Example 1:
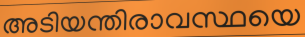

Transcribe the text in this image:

അടിയന്തിരാവസ്ഥയെ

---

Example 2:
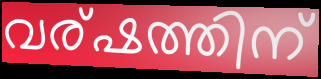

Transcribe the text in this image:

വര്ഷത്തിന്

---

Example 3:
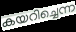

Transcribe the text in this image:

കയറിച്ചെന്ന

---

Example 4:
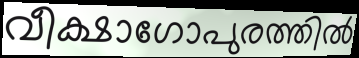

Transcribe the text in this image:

വീക്ഷാഗോപുരത്തിൽ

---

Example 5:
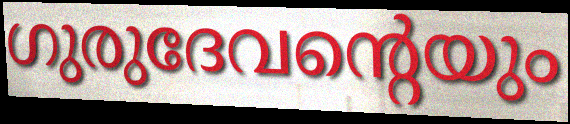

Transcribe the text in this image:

ഗുരുദേവന്റെയും